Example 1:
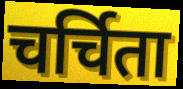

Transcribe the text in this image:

चर्चिता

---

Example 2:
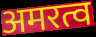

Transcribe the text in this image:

अमरत्व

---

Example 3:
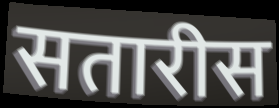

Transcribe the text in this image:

सतारीस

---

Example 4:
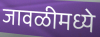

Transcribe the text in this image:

जावळीमध्ये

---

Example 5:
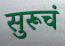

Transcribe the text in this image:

सुरूचं